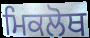
ਮਿਕਲੋਥ